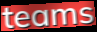
teams